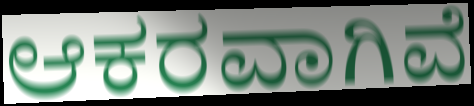
ಆಕರವಾಗಿವೆ